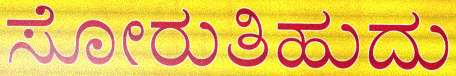
ಸೋರುತಿಹುದು